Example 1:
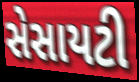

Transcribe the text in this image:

સેસાયટી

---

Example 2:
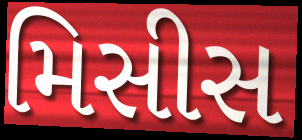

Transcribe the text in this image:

મિસીસ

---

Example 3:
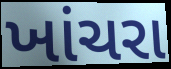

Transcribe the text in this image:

ખાંચરા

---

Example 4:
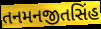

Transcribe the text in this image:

તનમનજીતસિંહ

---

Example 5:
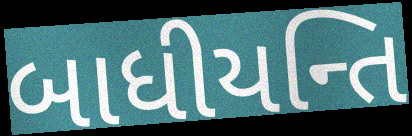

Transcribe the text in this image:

બાધીયન્તિ